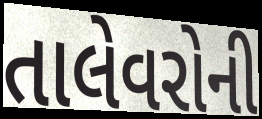
તાલેવરોની